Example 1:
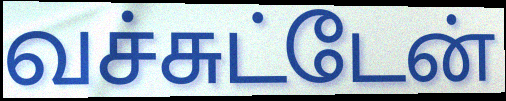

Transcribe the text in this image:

வச்சுட்டேன்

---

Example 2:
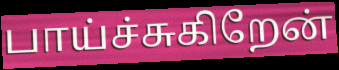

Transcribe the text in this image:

பாய்ச்சுகிறேன்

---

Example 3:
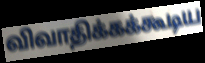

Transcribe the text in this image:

விவாதிக்கக்கூடிய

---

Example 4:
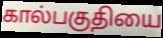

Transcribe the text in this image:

கால்பகுதியை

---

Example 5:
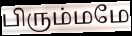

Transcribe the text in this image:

பிரும்மமே